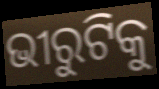
ଭୀରୁଟିକୁ